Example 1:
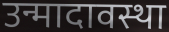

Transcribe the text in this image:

उन्मादावस्था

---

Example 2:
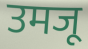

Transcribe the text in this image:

उमजू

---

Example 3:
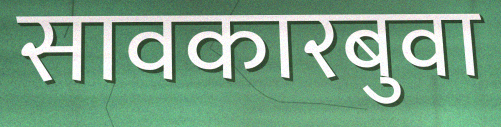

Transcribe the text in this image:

सावकारबुवा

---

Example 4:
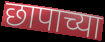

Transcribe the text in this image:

छापाच्या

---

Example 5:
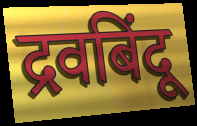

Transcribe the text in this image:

द्रवबिंदू